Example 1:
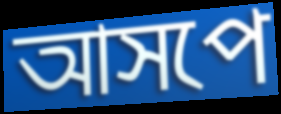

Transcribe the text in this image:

আসপে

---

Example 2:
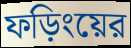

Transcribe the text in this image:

ফড়িংয়ের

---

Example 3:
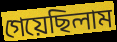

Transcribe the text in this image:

গেয়েছিলাম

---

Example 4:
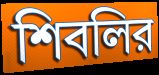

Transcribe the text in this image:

শিবলির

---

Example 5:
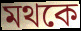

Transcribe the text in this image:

মথকে